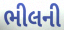
ભીલની